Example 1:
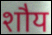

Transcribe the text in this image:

शौय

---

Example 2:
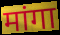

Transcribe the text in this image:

मांगा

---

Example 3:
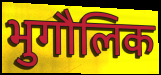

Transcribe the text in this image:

भुगौलिक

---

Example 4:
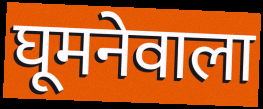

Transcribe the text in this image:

घूमनेवाला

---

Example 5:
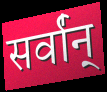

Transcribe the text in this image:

सर्वा॑न्